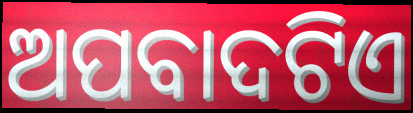
ଅପବାଦଟିଏ